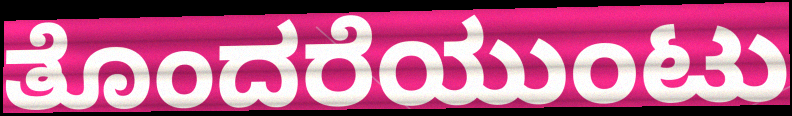
ತೊಂದರೆಯುಂಟು